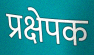
प्रक्षेपक